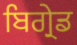
ਬਿਗ੍ਰੇਡ